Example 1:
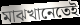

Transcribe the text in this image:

মাঝখানেতেই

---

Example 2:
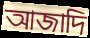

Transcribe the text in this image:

আজাদি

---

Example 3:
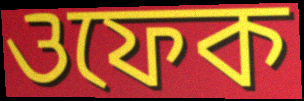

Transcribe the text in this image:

ওফেক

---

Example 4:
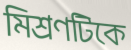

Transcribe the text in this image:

মিশ্রণটিকে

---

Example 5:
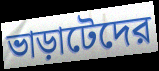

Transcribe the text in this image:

ভাড়াটেদের